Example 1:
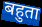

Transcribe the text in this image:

बहुता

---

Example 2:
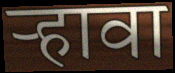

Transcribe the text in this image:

ऱ्हावा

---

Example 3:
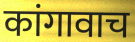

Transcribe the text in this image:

कांगावाच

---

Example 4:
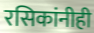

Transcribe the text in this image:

रसिकांनीही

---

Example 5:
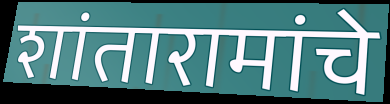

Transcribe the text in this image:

शांतारामांचे